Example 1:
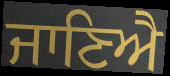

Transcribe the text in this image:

ਜਾਣਿਐ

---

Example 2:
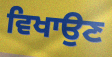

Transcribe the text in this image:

ਵਿਖਾਉਣ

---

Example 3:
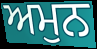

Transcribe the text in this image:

ਅਮੁਨ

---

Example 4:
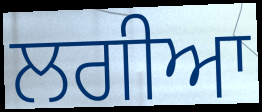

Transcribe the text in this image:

ਲਗੀਆ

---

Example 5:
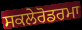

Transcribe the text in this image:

ਸਕਲੇਰੋਡਰਮਾ